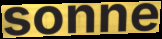
sonne